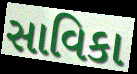
સાવિકા